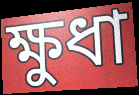
ক্ষুধা